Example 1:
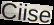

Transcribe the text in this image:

Ciise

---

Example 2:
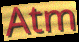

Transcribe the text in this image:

Atm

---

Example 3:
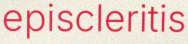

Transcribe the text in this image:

episcleritis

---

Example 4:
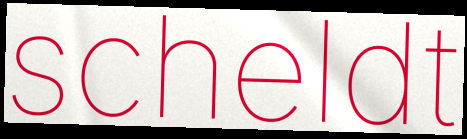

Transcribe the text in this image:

scheldt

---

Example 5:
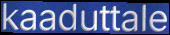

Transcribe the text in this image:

kaaduttale